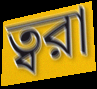
ত্বরা